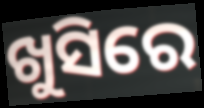
ଖୁସିରେ